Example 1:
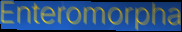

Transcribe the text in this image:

Enteromorpha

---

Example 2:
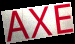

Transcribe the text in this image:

AXE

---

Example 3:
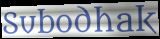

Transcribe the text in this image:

Subodhak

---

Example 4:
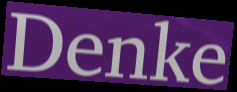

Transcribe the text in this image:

Denke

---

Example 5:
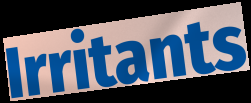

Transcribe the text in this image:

Irritants